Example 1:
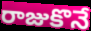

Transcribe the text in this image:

రాజుకొనే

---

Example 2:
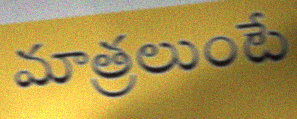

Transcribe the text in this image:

మాత్రలుంటే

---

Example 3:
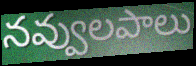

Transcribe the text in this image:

నవ్వులపాలు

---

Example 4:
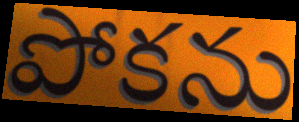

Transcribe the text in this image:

పోకను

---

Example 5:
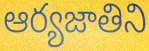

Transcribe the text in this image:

ఆర్యజాతిని